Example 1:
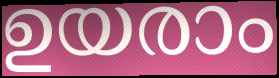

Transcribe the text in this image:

ഉയരാം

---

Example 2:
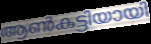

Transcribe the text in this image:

ആൺകുട്ടിയായി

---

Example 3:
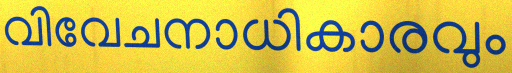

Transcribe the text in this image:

വിവേചനാധികാരവും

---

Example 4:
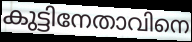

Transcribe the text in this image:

കുട്ടിനേതാവിനെ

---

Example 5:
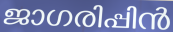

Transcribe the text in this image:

ജാഗരിപ്പിൻ